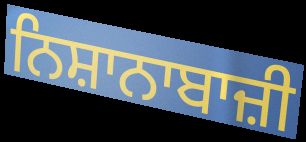
ਨਿਸ਼ਾਨਾਬਾਜ਼ੀ